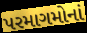
પરમાગમોનાં